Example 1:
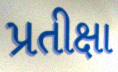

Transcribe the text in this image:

પ્રતીક્ષા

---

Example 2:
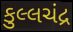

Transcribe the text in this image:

કુલ્લચંદ્ર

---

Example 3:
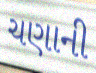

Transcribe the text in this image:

ચણાની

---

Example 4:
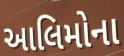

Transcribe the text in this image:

આલિમોના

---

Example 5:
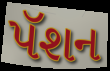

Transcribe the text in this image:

પૅશન